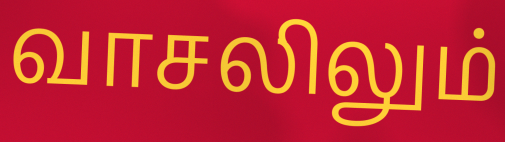
வாசலிலும்